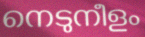
നെടുനീളം